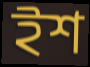
ইশ